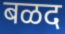
बळद